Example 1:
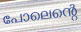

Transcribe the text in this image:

പോലെന്റെ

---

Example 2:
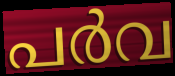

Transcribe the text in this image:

പർവ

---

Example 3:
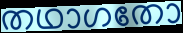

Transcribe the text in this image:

തഥാഗതോ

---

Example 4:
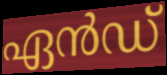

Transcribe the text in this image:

ഏൻഡ്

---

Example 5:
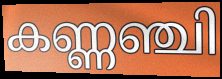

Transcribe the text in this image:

കണ്ണഞ്ചി